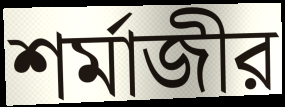
শর্মাজীর